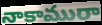
నాకామురా